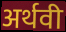
अर्थवी